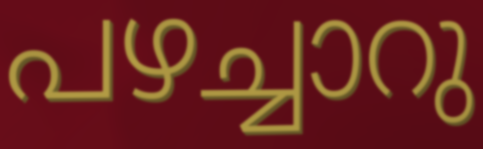
പഴച്ചാറു